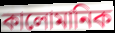
কালোমানিক